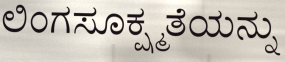
ಲಿಂಗಸೂಕ್ಷ್ಮತೆಯನ್ನು